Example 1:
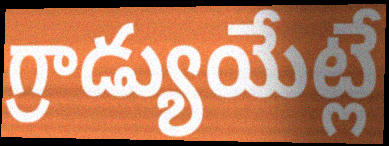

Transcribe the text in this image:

గ్రాడ్యుయేట్లే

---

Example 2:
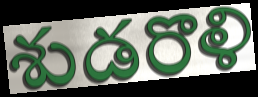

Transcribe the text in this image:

శుడరొళి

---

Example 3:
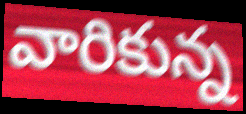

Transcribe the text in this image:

వారికున్న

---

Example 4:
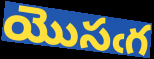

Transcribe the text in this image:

యొసఁగ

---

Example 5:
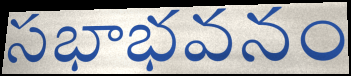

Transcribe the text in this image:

సభాభవనం